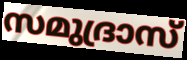
സമുദ്രാസ്